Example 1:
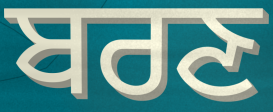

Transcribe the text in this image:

ਬਰਣ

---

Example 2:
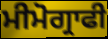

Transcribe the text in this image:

ਮੀਮੋਗ੍ਰਾਫੀ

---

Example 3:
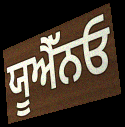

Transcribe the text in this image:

ਯੂਐੱਨਓ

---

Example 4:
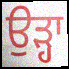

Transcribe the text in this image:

ਉੜ੍ਹਾ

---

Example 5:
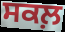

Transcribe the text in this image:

ਸਕਲ਼